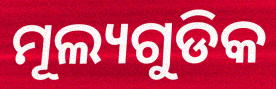
ମୂଲ୍ୟଗୁଡିକ